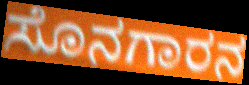
ಸೊನಗಾರನ